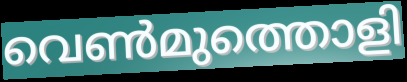
വെൺമുത്തൊളി